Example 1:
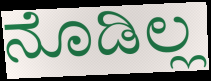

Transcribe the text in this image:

ನೊಡಿಲ್ಲ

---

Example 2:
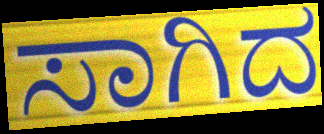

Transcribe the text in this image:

ಸಾಗಿದ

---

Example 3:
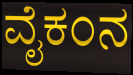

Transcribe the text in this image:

ವೈಕಂನ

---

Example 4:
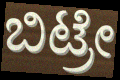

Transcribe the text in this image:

ಬಿಟ್ರೇ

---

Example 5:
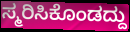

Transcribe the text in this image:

ಸ್ಮರಿಸಿಕೊಂಡದ್ದು